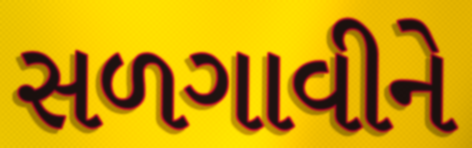
સળગાવીને